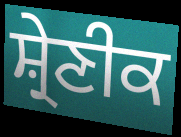
ਸ਼੍ਰੇਣੀਕ